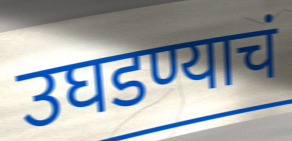
उघडण्याचं